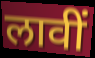
लावीं